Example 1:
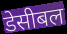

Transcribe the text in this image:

डेसीबल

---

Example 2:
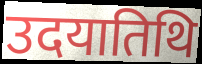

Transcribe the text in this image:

उदयातिथि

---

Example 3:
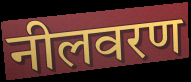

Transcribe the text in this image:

नीलवरण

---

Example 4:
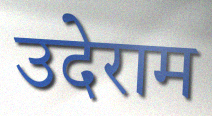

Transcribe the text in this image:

उदेराम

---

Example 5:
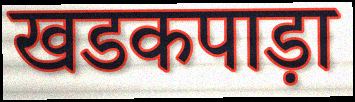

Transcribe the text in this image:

खडकपाड़ा